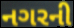
નગરની